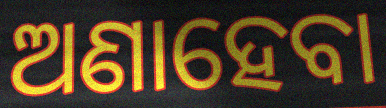
ଅଣାହେବା